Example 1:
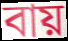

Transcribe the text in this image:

বায়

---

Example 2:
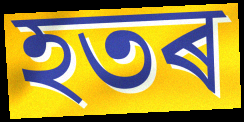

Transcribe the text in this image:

হতৰ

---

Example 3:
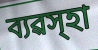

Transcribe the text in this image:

ব্যৱস্হা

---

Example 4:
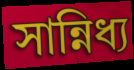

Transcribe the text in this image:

সান্নিধ্য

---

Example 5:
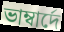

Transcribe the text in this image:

ভাম্বাৰ্দে